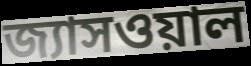
জ্যাসওয়াল